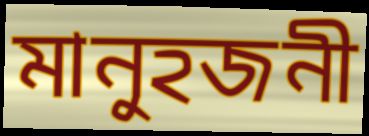
মানুহজনী